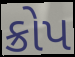
ક્રોપ